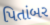
પિતાંબર